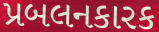
પ્રબલનકારક